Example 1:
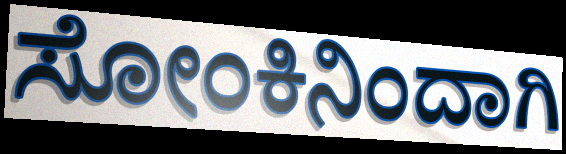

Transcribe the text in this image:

ಸೋಂಕಿನಿಂದಾಗಿ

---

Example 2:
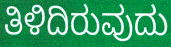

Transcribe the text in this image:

ತಿಳಿದಿರುವುದು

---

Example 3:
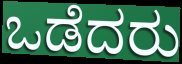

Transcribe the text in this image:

ಒಡೆದರು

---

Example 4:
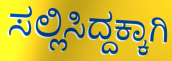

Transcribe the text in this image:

ಸಲ್ಲಿಸಿದ್ದಕ್ಕಾಗಿ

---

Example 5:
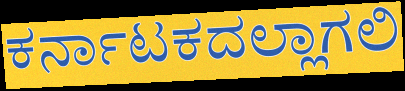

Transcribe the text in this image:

ಕರ್ನಾಟಕದಲ್ಲಾಗಲಿ